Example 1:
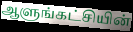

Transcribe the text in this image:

ஆளுங்கட்சியின்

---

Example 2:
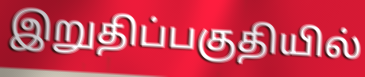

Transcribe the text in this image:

இறுதிப்பகுதியில்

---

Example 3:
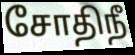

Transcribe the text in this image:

சோதிநீ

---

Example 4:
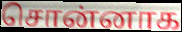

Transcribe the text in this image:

சொன்னாக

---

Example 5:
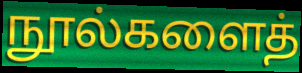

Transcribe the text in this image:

நூல்களைத்